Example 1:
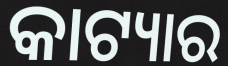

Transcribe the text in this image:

କାଟ୍ୟାର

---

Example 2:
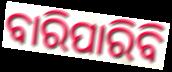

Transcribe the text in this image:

ବାରିପାରିବି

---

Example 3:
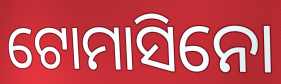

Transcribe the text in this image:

ଟୋମାସିନୋ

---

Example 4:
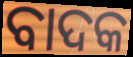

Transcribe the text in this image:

ବାଦକ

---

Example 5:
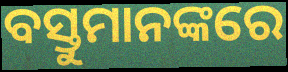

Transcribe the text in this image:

ବସ୍ତୁମାନଙ୍କରେ